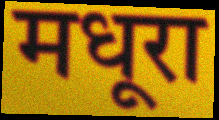
मधूरा